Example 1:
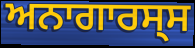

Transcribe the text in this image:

ਅਨਾਗਾਰਸ੍ਸ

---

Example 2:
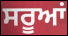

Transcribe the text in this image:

ਸਰੂਆਂ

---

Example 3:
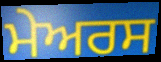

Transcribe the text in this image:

ਮੇਅਰਸ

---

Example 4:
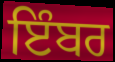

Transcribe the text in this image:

ਇੰਬਰ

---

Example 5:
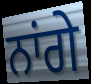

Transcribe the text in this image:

ਨਾਂਗੇ